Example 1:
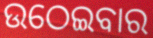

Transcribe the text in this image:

ଉଠେଇବାର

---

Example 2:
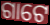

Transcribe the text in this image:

ଗାଟେ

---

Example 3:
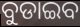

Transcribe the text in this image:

ବୁଡାଇବ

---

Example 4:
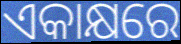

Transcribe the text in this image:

ଏକାକ୍ଷରେ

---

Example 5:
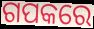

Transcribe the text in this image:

ଗପକରେ